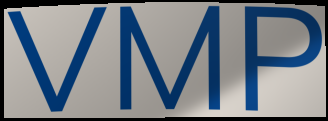
VMP